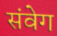
संवेग